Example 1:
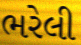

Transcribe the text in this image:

ભરેલી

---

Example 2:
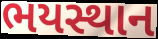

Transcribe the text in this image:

ભયસ્થાન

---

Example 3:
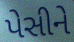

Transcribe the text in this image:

પેસીને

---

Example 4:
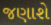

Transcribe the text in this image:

જણાશે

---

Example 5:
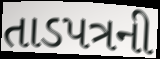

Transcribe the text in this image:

તાડપત્રની